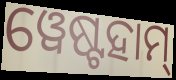
ୱେଷ୍ଟହାମ୍